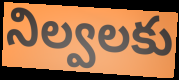
నిల్వలకు